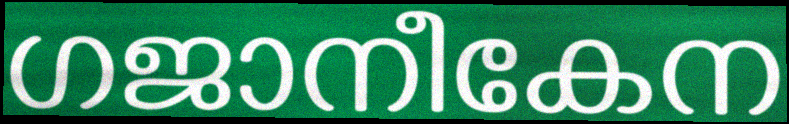
ഗജാനീകേന